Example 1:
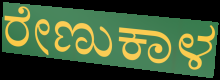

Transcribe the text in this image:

ರೇಣುಕಾಳ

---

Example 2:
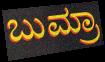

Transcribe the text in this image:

ಬುಮ್ರಾ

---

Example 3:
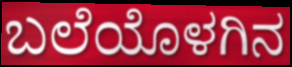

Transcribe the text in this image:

ಬಲೆಯೊಳಗಿನ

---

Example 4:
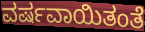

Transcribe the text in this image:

ವರ್ಷವಾಯಿತಂತೆ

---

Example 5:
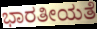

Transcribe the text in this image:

ಭಾರತೀಯತೆ